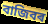
বাজিবৰ